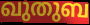
ഖുതുബ